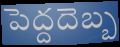
పెద్దదెబ్బ